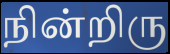
நின்றிரு